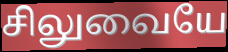
சிலுவையே